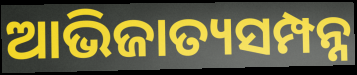
ଆଭିଜାତ୍ୟସମ୍ପନ୍ନ